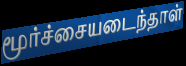
மூர்ச்சையடைந்தாள்